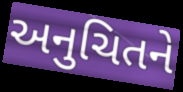
અનુચિતને